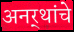
अनर्थांचे